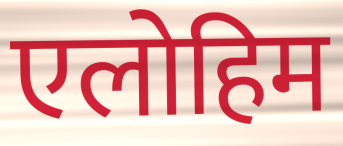
एलोहिम